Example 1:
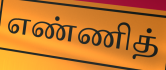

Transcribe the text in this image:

எண்ணித்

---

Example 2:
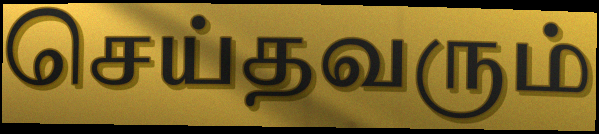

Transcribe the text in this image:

செய்தவரும்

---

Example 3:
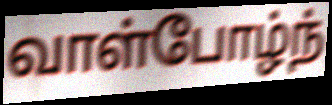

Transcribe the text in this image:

வாள்போழ்ந்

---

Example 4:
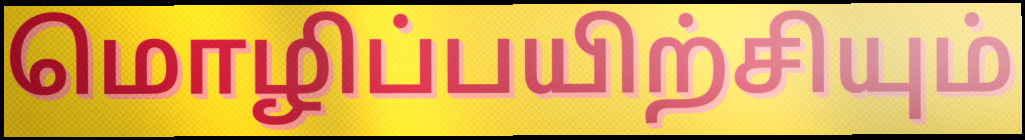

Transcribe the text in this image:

மொழிப்பயிற்சியும்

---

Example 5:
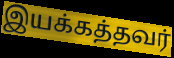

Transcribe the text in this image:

இயக்கத்தவர்